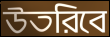
উতরিবে